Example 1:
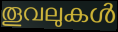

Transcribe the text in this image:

തൂവലുകൾ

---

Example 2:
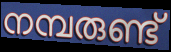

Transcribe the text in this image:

നമ്പരുണ്ട്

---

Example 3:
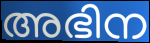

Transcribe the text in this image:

അഭിന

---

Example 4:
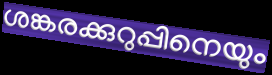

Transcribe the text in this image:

ശങ്കരക്കുറുപ്പിനെയും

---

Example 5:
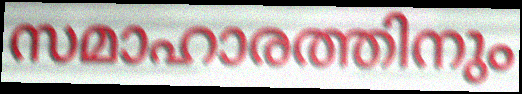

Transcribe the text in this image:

സമാഹാരത്തിനും